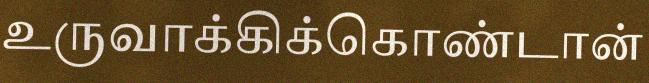
உருவாக்கிக்கொண்டான்